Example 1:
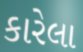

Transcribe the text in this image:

કારેલા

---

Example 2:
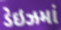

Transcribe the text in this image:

ડેઇઝમાં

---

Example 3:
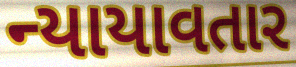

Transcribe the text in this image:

ન્યાયાવતાર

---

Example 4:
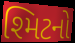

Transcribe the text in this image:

શ્મિટનો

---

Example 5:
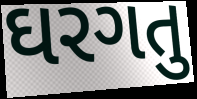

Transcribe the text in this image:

ઘરગતુ